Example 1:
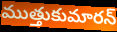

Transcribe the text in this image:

ముత్తుకుమారన్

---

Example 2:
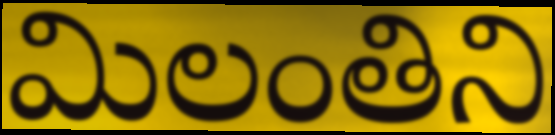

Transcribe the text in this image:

మిలంతిని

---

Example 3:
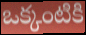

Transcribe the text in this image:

ఒక్కంటికి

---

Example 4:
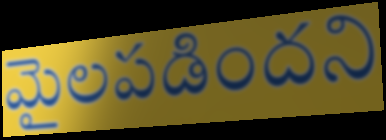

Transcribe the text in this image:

మైలపడిందని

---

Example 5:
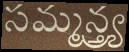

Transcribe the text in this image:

సమ్మన్త్ర్య